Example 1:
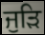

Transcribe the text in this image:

ਜੁੜਿ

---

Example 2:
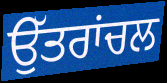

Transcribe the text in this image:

ਉੱਤਰਾਂਚਲ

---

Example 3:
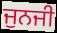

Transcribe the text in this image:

ਜੁਨਜੀ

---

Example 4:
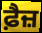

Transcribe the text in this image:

ਫ਼ੈਜ਼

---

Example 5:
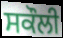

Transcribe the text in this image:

ਸਕੌਲੀ